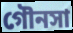
গৌনসা